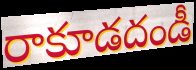
రాకూడదండీ